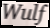
Wulf